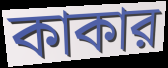
কাকার